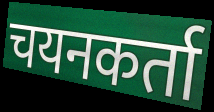
चयनकर्ता